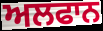
ਅਲਫਾਨ